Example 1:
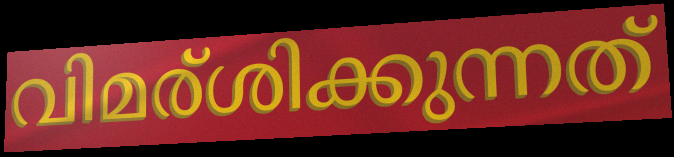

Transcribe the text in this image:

വിമര്ശിക്കുന്നത്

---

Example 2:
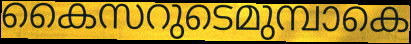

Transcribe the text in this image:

കൈസറുടെമുമ്പാകെ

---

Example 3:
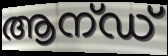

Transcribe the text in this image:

ആന്ഡ്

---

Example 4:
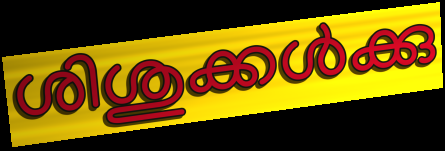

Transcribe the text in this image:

ശിശുക്കൾക്കു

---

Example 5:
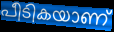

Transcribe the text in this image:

പീടികയാണ്